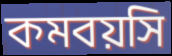
কমবয়সি